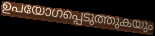
ഉപയോഗപ്പെടുത്തുകയും